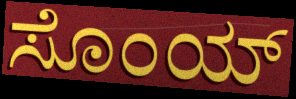
ಸೊಂಯ್